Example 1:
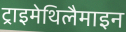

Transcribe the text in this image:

ट्राइमेथिलैमाइन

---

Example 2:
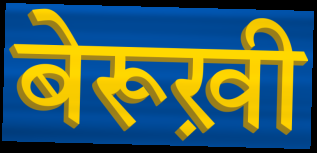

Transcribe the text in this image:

बेरूख़ी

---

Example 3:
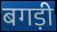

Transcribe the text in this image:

बगड़ी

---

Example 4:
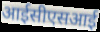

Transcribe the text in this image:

आईसीएसआई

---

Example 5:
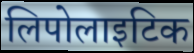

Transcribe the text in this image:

लिपोलाइटिक